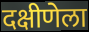
दक्षीणेला